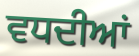
ਵਧਦੀਆਂ